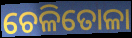
ଚେଳିତୋଳା